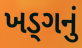
ખડ્ગનું